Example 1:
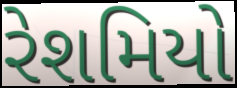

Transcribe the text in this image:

રેશમિયો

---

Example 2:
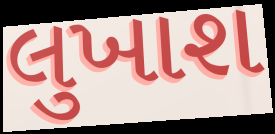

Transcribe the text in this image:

લુખાશ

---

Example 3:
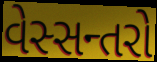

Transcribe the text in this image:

વેસ્સન્તરો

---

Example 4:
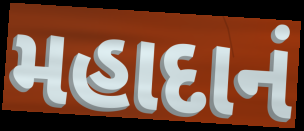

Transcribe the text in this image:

મહાદાનં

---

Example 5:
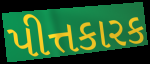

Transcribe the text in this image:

પીત્તકારક